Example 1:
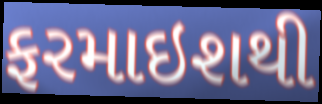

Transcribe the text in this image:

ફરમાઇશથી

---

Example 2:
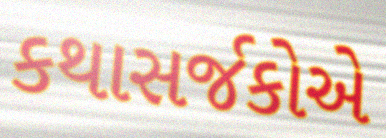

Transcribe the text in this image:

કથાસર્જકોએ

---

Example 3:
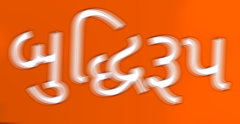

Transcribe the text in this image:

બુદ્ધિરૂપ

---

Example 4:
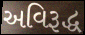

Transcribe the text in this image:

અવિરૂદ્ધ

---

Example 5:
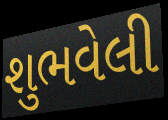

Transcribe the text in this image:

શુભવેલી